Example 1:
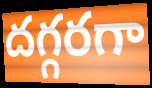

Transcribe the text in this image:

దగ్గరగా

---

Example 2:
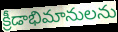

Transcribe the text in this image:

క్రీడాభిమానులను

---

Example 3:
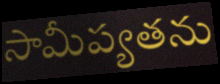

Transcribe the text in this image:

సామీప్యతను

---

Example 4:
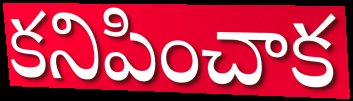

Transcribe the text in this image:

కనిపించాక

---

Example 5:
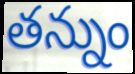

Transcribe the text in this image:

తన్నుం